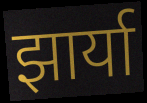
झार्या